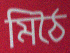
মিঠৈ